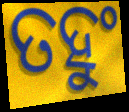
ତହୁଂ